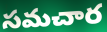
సమచార